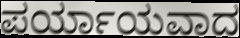
ಪರ್ಯಾಯವಾದ